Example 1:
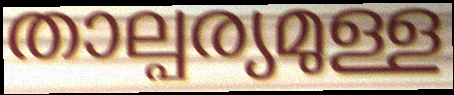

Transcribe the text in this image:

താല്പര്യമുള്ള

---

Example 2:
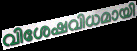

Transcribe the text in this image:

വിശേഷവിധമായി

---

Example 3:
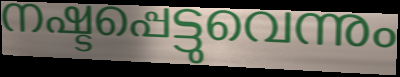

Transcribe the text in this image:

നഷ്ടപ്പെട്ടുവെന്നും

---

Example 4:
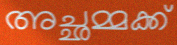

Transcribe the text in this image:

അച്ഛമ്മക്ക്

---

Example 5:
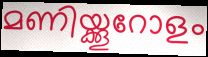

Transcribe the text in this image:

മണിയ്ക്കൂറോളം